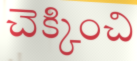
చెక్కించి